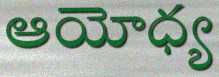
ఆయోధ్య